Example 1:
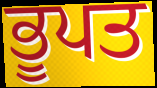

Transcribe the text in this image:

ਭੂਪਤ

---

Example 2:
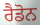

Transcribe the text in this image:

ਰੈਡੋਨ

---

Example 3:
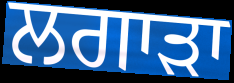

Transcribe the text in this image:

ਲਗਾੜਾ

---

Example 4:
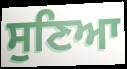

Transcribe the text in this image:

ਸੁਣਿਆ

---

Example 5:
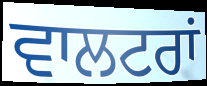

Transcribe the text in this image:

ਵਾਲਟਰਾਂ